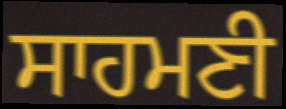
ਸਾਹਮਣੀ